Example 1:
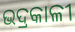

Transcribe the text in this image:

ଭଦ୍ରକାଳୀ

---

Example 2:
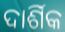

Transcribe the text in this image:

ଦାର୍ଶିକ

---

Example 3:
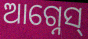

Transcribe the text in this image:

ଆଗ୍ନେସ୍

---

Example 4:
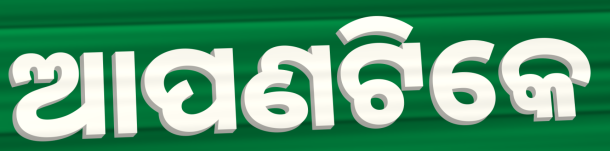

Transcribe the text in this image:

ଆପଣଟିକେ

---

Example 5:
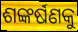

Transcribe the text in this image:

ଶଙ୍କର୍ଷଣକୁ